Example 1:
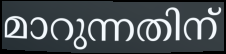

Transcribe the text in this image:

മാറുന്നതിന്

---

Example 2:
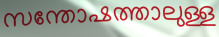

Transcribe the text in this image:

സന്തോഷത്താലുള്ള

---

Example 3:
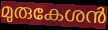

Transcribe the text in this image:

മുരുകേശൻ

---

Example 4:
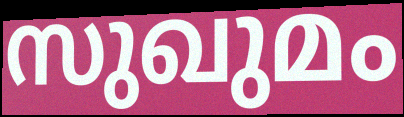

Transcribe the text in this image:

സുഖുമം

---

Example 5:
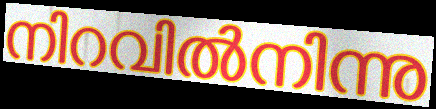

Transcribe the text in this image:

നിറവിൽനിന്നു